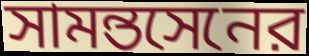
সামন্তসেনের